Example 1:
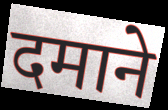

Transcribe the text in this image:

दमाने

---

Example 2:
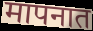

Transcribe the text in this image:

मापनात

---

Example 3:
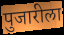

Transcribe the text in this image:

पुजारीला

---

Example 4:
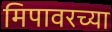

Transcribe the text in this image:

मिपावरच्या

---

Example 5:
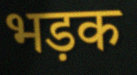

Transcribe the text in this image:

भड़क